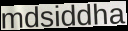
mdsiddha